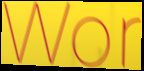
Wor